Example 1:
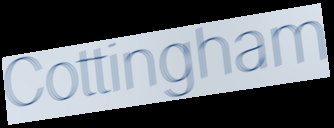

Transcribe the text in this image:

Cottingham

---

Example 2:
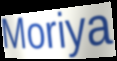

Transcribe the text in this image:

Moriya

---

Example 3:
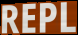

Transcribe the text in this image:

REPL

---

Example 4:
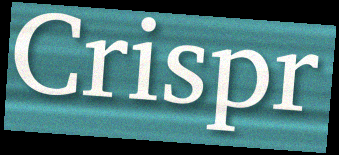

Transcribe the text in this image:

Crispr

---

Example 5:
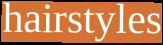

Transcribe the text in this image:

hairstyles